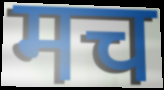
मच